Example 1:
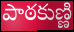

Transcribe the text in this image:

పాఠకుణ్ణి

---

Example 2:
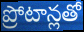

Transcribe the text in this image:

ప్రోటాన్లతో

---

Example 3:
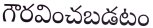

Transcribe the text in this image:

గౌరవించబడటం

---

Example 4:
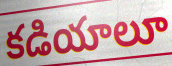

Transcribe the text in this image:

కడియాలూ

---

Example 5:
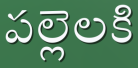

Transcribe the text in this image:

పల్లెలకి